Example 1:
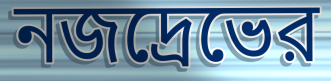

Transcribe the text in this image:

নজদ্রেভের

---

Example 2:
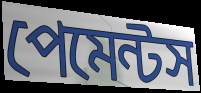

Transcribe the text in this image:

পেমেন্টস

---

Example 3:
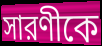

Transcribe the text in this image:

সারণীকে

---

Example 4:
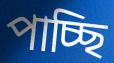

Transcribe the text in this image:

পাচ্ছি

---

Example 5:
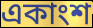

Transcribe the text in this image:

একাংশ